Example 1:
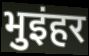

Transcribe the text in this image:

भुइंहर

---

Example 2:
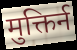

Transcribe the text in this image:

मुक्तिर्न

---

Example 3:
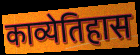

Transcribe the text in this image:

काव्येतिहास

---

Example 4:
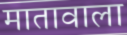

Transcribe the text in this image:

मातावाला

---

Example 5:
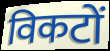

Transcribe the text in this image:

विकटों